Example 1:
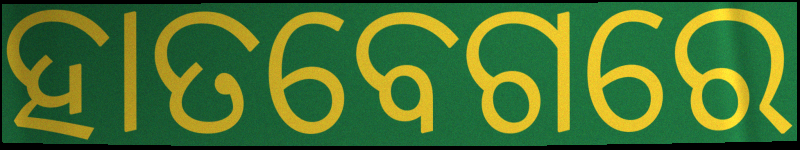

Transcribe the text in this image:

ହାତବେଗରେ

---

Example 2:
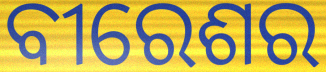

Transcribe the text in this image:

ବୀରେଶର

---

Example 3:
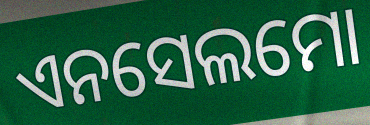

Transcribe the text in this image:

ଏନସେଲମୋ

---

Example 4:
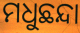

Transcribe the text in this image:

ମଧୁଛନ୍ଦା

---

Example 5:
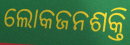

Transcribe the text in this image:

ଲୋକଜନଶକ୍ତି